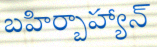
బహిర్బాహ్యాన్